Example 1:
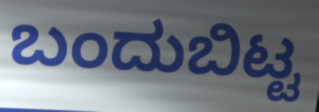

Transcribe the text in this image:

ಬಂದುಬಿಟ್ಟ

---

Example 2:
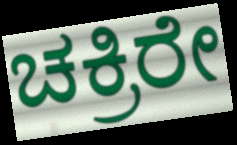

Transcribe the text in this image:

ಚಕ್ರಿರೇ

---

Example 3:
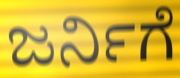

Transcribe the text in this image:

ಜರ್ನಿಗೆ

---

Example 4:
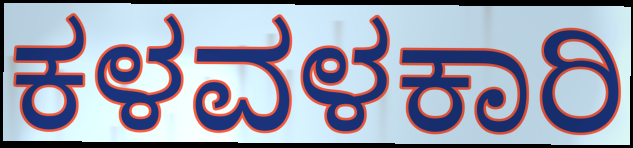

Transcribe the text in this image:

ಕಳವಳಕಾರಿ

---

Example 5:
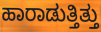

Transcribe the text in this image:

ಹಾರಾಡುತ್ತಿತ್ತು